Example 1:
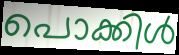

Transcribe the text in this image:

പൊക്കിൾ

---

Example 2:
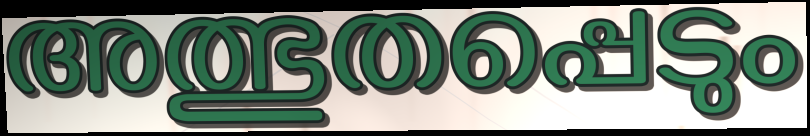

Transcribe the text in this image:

അത്ഭുതപ്പെടും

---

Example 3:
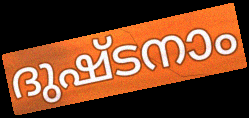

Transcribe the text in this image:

ദുഷ്ടനാം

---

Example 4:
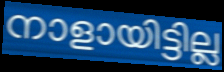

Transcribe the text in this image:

നാളായിട്ടില്ല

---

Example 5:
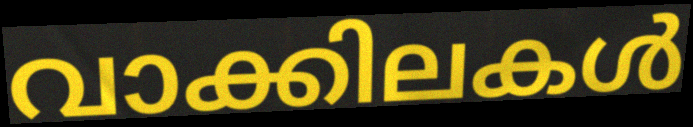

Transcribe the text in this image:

വാക്കിലകൾ